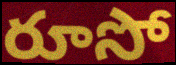
రూసో